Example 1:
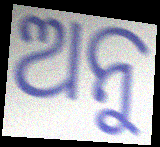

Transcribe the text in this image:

ଅନୁ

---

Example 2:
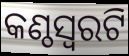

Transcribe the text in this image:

କଣ୍ଠସ୍ଵରଟି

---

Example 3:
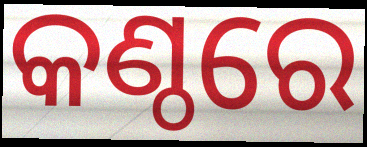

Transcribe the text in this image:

କଣ୍ଠରେ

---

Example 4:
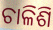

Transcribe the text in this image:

ଚାଳିଶି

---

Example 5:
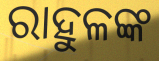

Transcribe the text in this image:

ରାହୁଳଙ୍କ